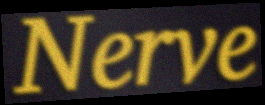
Nerve